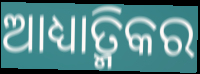
ଆଧ୍ୟାତ୍ମିକର